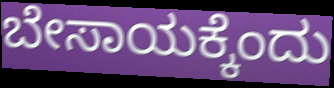
ಬೇಸಾಯಕ್ಕೆಂದು